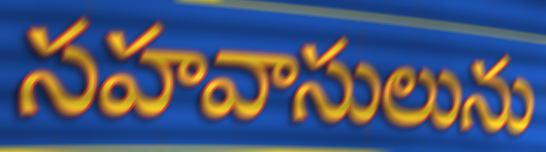
సహవాసులును